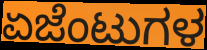
ಏಜೆಂಟುಗಳ